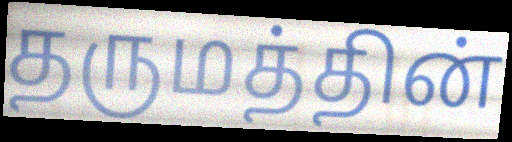
தருமத்தின்